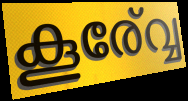
കൂര്വ്വേ